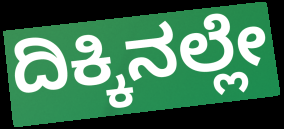
ದಿಕ್ಕಿನಲ್ಲೇ